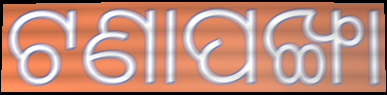
ଟଣାପଙ୍ଖା